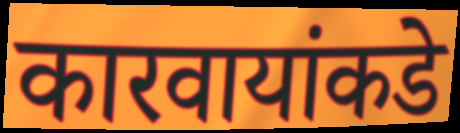
कारवायांकडे